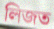
লিজত